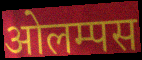
ओलम्पस